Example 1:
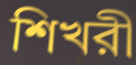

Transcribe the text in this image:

শিখরী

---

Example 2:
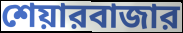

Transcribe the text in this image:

শেয়ারবাজার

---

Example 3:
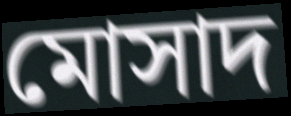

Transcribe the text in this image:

মোসাদ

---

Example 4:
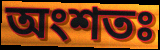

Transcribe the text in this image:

অংশতঃ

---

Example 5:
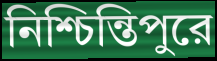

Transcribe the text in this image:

নিশ্চিন্তিপুরে